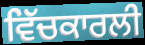
ਵਿੱਚਕਾਰਲੀ